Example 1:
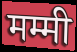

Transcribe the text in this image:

मम्मी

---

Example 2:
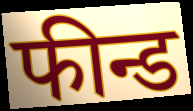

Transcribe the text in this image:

फीन्ड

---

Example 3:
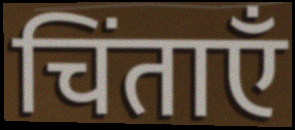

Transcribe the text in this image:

चिंताएँ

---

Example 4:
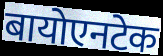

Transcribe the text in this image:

बायोएनटेक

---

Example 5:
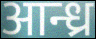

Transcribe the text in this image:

आन्ध्र